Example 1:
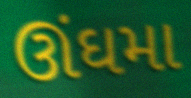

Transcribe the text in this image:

ઊંઘમા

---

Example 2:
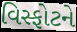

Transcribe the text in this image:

વિસ્ફોટને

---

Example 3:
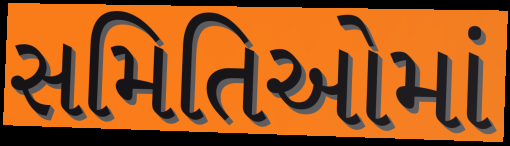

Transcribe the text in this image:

સમિતિઓમાં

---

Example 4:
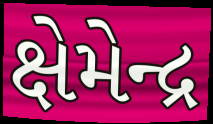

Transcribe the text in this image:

ક્ષેમેન્દ્ર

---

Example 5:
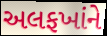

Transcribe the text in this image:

અલફખાંને